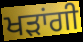
ਖੜਾਂਗੀ